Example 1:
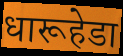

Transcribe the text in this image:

धारूहेडा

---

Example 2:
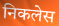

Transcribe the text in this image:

निकलेस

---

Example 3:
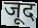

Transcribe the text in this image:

जूद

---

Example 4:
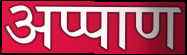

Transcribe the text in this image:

अप्पाण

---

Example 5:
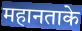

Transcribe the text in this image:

महानताके